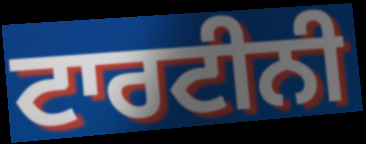
ਟਾਰਟੀਨੀ